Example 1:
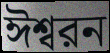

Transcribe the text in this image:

ঈশ্বরন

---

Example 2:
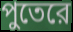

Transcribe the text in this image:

পুতেরে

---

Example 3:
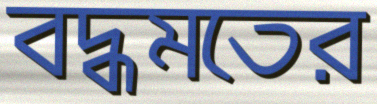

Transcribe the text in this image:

বদ্ধমতের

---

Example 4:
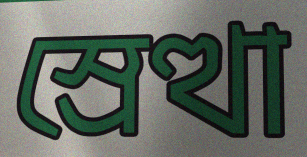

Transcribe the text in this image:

স্রেত্থা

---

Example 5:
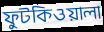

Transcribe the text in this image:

ফুটকিওয়ালা